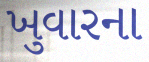
ખુવારના